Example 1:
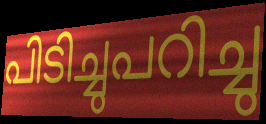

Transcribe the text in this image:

പിടിച്ചുപറിച്ചു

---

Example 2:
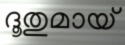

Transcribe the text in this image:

ദൂതുമായ്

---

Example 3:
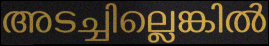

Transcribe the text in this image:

അടച്ചില്ലെങ്കിൽ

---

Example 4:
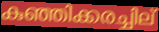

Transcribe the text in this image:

കുഞ്ഞിക്കരച്ചില്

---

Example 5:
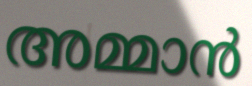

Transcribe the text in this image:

അമ്മാൻ